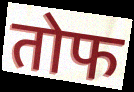
तोफ